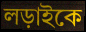
লড়াইকে